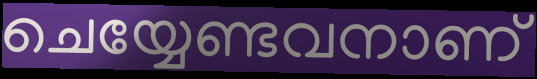
ചെയ്യേണ്ടവനാണ്